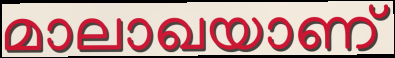
മാലാഖയാണ്